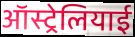
ऑस्ट्रेलियाई